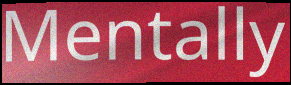
Mentally